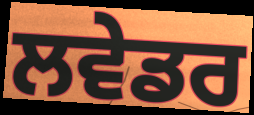
ਲਵੇਡਰ